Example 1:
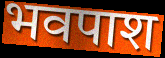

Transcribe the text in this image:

भवपाश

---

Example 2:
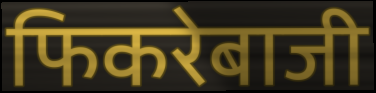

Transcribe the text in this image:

फिकरेबाजी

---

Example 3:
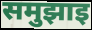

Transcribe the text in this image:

समुझाइ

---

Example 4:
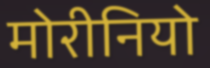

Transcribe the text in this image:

मोरीनियो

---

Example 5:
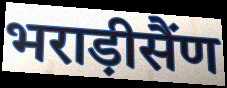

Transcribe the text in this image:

भराड़ीसैंण